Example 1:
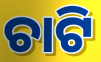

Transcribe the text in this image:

ଚାଟି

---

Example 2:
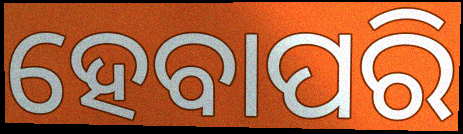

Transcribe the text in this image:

ହେବାପରି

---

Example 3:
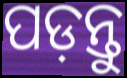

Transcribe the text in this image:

ପଡ଼ନ୍ତୁ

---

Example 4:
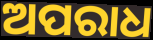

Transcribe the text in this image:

ଅପରାଧ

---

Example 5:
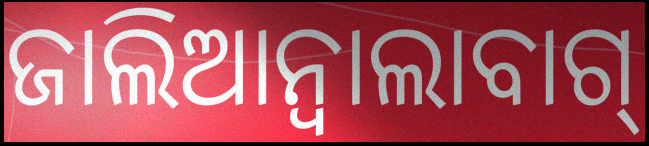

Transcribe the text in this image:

ଜାଲିଆନ୍ଵାଲାବାଗ୍